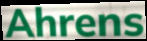
Ahrens